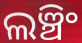
ଲଞ୍ଚିଂ